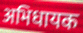
अभिधायक